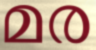
മര